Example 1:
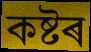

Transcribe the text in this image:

কষ্টৰ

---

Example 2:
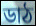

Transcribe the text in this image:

ডাঠ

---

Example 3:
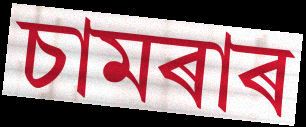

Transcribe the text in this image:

চামৰাৰ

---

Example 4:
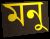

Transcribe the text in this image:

মনু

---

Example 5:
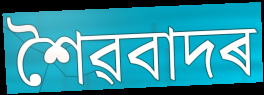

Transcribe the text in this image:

শৈৱবাদৰ